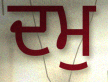
ਦਮੁ